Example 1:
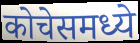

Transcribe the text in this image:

कोचेसमध्ये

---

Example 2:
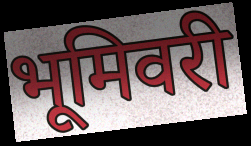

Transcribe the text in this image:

भूमिवरी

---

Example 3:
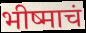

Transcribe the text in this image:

भीष्माचं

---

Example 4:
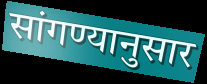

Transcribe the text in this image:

सांगण्यानुसार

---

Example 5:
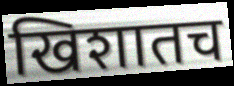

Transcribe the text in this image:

खिशातच